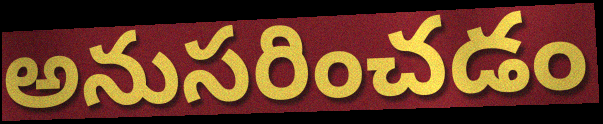
అనుసరించడం